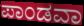
ಪಾಂಡವಾ